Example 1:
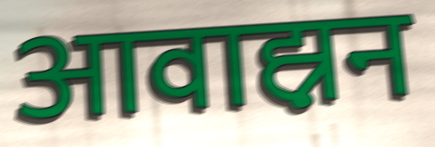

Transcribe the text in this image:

आवाह्नन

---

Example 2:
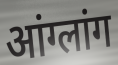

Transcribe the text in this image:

आंग्लांग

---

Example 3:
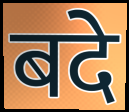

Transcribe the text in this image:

बदे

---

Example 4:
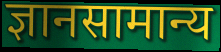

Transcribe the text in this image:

ज्ञानसामान्य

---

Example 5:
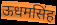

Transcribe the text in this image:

ऊधमसिंह